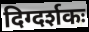
दिग्दर्शकः